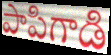
పాపిగాడి